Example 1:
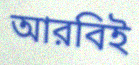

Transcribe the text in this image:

আরবিই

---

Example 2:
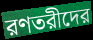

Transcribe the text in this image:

রণতরীদের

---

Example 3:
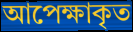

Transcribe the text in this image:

আপেক্ষাকৃত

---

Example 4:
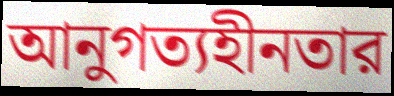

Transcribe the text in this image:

আনুগত্যহীনতার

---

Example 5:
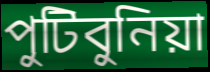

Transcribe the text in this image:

পুটিবুনিয়া